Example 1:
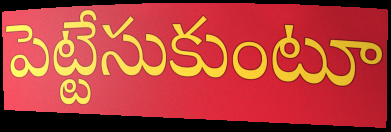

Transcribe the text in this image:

పెట్టేసుకుంటూ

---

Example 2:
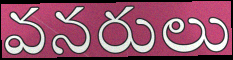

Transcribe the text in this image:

వనరులు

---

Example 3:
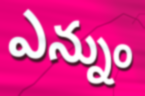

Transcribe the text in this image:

ఎన్నుం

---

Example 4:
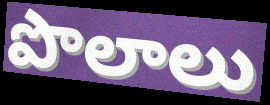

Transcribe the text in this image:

పొలాలు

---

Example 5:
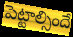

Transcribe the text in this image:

పెట్టాల్సిందే